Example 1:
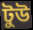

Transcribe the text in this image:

টুউ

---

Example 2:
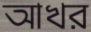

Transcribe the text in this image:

আখর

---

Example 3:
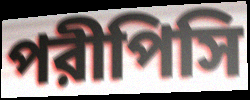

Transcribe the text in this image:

পরীপিসি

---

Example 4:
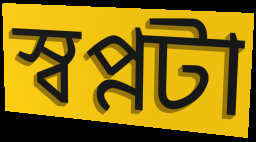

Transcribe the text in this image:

স্বপ্নটা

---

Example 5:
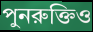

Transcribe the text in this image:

পুনরুক্তিও